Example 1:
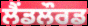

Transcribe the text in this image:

ਲੈਂਡਲੌਰਡ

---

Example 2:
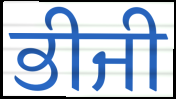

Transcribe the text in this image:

ਭੀਜੀ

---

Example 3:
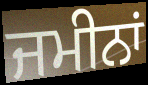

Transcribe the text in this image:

ਜਮੀਨਾਂ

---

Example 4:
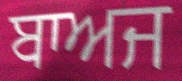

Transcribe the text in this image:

ਬਾਅਜ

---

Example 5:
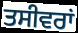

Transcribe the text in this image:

ਤਸੀਵਰਾਂ